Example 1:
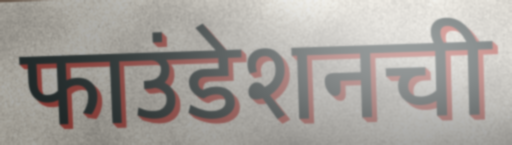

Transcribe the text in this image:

फाउंडेशनची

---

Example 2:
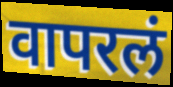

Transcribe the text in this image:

वापरलं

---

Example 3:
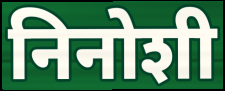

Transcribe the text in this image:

निनोशी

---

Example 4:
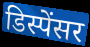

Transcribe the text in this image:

डिस्पेंसर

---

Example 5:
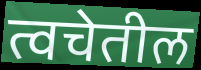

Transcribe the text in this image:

त्वचेतील